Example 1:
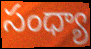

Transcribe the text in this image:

సంధ్యా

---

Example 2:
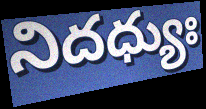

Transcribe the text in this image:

నిదధ్యుః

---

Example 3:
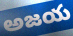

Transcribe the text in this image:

అజయ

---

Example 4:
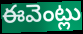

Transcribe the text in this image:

ఈవెంట్లు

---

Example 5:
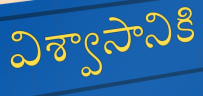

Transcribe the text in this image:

విశ్వాసానికి